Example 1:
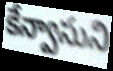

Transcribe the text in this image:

కేన్వాసుని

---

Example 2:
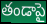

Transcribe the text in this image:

తండాపై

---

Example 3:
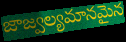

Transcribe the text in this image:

జాజ్వల్యమానమైన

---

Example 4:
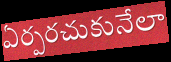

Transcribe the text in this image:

ఏర్పరచుకునేలా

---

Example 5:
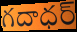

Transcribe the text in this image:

గదాధర్